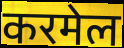
करमेल